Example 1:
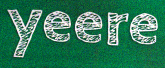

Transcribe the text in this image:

yeere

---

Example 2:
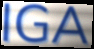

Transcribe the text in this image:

IGA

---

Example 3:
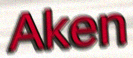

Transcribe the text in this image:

Aken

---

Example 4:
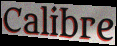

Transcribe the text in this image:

Calibre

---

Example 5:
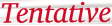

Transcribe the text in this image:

Tentative